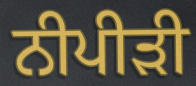
ਨੀਪੀੜੀ